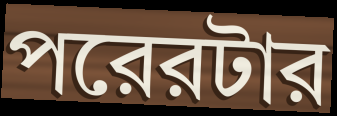
পরেরটার